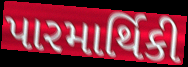
પારમાર્થિકી